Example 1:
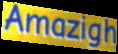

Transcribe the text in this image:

Amazigh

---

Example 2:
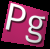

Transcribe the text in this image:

Pg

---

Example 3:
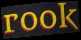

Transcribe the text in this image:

rook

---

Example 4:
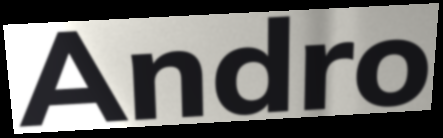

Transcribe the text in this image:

Andro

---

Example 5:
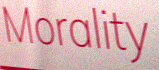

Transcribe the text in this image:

Morality